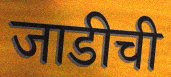
जाडीची